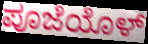
ಪೂಜೆಯೊಳ್